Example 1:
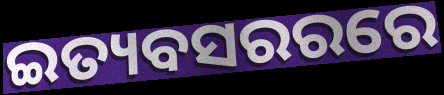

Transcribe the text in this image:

ଇତ୍ୟବସରରରେ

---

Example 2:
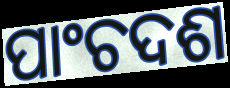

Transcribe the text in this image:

ପାଂଚଦଶ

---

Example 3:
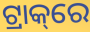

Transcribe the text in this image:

ଟ୍ରାକ୍‌ରେ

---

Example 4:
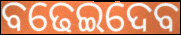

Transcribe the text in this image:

ବଢେଇଦେବ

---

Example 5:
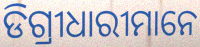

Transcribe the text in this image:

ଡିଗ୍ରୀଧାରୀମାନେ